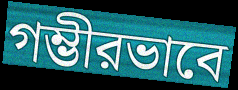
গম্ভীরভাবে